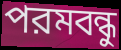
পরমবন্ধু